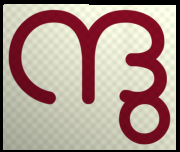
ന്ദു